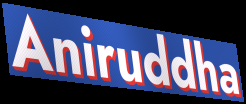
Aniruddha